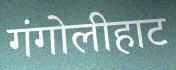
गंगोलीहाट